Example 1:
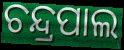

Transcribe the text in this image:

ଚନ୍ଦ୍ରପାଲ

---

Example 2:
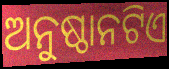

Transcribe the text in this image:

ଅନୁଷ୍ଠାନଟିଏ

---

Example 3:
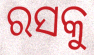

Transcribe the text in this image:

ରସକୁ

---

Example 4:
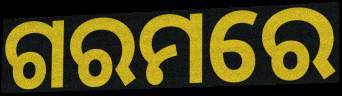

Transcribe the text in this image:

ଗରମରେ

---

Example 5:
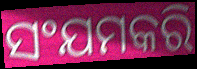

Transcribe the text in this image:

ସଂଯମକରି